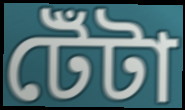
টেঁটা